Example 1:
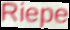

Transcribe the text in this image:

Riepe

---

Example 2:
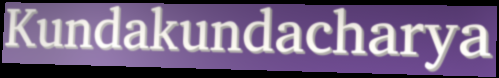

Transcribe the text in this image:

Kundakundacharya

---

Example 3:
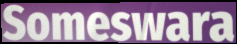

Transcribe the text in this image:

Someswara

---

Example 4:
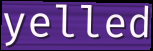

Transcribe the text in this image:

yelled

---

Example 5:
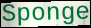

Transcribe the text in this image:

Sponge